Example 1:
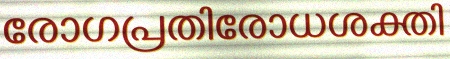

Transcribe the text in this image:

രോഗപ്രതിരോധശക്തി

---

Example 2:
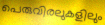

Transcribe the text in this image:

പെരുവിരലുകളിലും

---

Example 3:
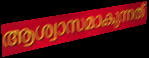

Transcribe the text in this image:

ആശ്വാസമാകുന്നത്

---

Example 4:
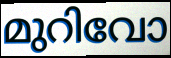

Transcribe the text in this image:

മുറിവോ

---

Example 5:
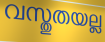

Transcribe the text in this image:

വസ്തുതയല്ല